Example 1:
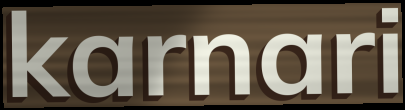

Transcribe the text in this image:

karnari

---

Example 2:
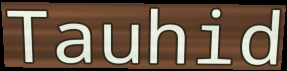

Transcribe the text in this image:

Tauhid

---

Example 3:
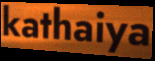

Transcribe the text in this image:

kathaiya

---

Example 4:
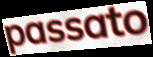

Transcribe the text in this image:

passato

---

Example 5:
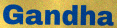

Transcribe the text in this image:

Gandha